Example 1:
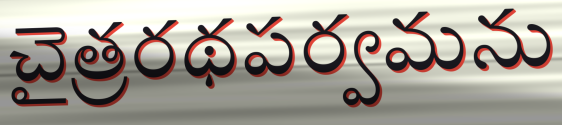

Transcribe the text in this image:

చైత్రరథపర్వమను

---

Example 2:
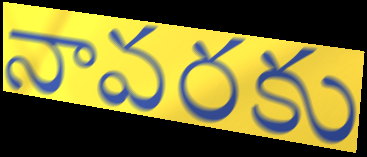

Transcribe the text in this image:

నావరకు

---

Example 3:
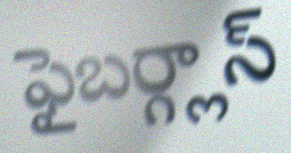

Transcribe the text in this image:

ఫైబర్గ్లాస్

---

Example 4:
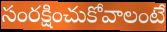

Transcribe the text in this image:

సంరక్షించుకోవాలంటే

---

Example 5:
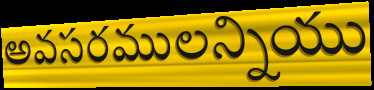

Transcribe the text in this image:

అవసరములన్నియు